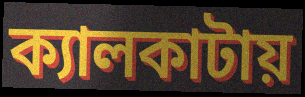
ক্যালকাটায়